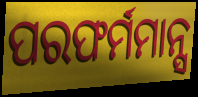
ପରଫର୍ମମାନ୍ସ